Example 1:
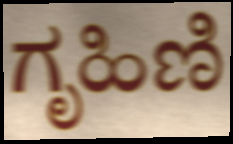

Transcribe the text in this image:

ಗೃಹಿಣಿ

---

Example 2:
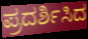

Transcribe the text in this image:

ಪ್ರದರ್ಶಿಸಿದ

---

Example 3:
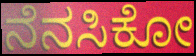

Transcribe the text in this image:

ನೆನಸಿಕೋ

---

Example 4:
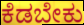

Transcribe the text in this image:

ಕೆಡಬೇಕು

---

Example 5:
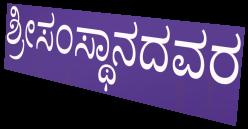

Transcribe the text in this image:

ಶ್ರೀಸಂಸ್ಥಾನದವರ